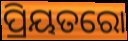
ପ୍ରିୟତରୋ